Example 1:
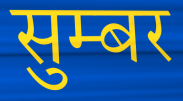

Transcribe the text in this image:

सुम्बर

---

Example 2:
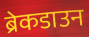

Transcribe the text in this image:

ब्रेकडाउन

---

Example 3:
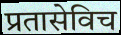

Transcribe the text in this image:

प्रतासेविच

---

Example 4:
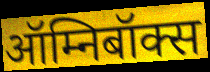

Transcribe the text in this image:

ऑम्निबॉक्स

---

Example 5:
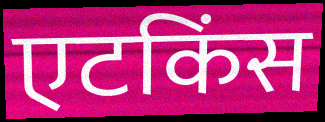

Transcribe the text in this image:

एटकिंस